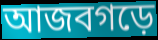
আজবগড়ে